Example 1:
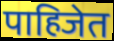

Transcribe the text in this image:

पाहिजेत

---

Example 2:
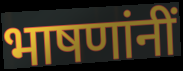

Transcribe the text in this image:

भाषणांनीं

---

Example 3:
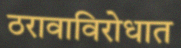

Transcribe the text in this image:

ठरावाविरोधात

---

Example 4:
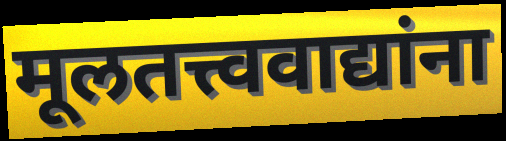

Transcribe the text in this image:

मूलतत्त्ववाद्यांना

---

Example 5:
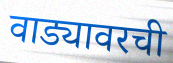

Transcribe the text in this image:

वाड्यावरची